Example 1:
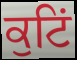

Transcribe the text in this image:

ਕੁਟਿਂ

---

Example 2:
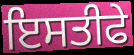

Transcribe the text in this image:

ਇਸਤੀਫੇ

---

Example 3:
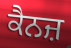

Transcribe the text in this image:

ਕੈਨਜ਼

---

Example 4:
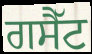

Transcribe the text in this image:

ਗਸੈੱਟ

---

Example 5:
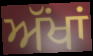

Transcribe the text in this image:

ਅੱਂਖਾਂ